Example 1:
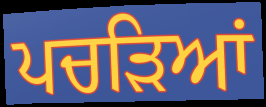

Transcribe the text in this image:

ਪਚੜਿਆਂ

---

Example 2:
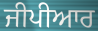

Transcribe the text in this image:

ਜੀਪੀਆਰ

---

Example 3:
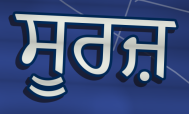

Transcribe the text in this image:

ਸੂਰਜ਼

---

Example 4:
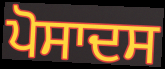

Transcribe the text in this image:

ਪੋਸਾਦਸ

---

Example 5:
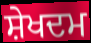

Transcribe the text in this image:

ਸ਼ੇਖਦਮ